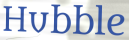
Hubble